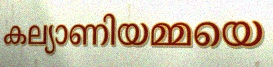
കല്യാണിയമ്മയെ